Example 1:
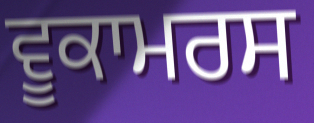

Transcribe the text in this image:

ਵੂਕਾਮਰਸ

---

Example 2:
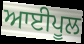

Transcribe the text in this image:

ਆਈਪੂਲ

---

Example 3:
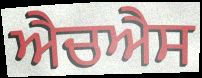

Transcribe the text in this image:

ਐਚਐਸ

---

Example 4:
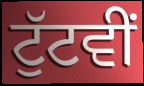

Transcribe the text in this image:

ਟੁੱਟਵੀਂ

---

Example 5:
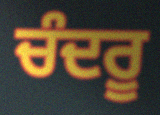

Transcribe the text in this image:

ਚੰਦਰੂ